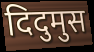
दिदुमुस